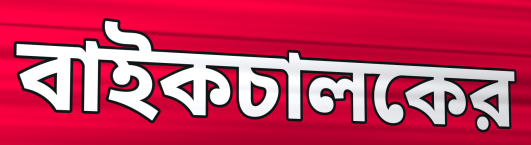
বাইকচালকের